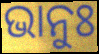
ଭାନୁଃ